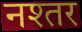
नश्तर